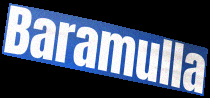
Baramulla